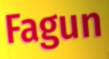
Fagun